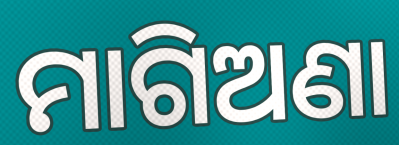
ମାଗିଅଣା